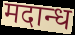
मदान्ध